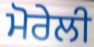
ਮੋਰੇਲੀ